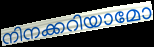
നിനക്കറിയാമോ